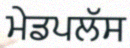
ਮੇਡਪਲੱਸ